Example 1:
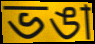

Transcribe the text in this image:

ভঙা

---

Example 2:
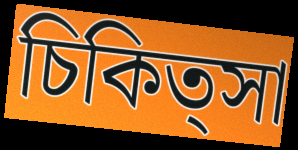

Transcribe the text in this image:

চিকিত্সা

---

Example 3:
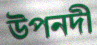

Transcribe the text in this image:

উপনদী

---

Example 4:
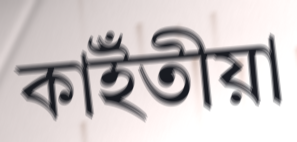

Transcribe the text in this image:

কাইঁতীয়া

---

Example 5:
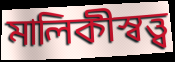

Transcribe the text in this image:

মালিকীস্বত্ত্ব